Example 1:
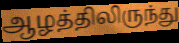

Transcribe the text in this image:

ஆழத்திலிருந்து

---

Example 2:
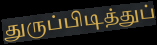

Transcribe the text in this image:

துருப்பிடித்துப்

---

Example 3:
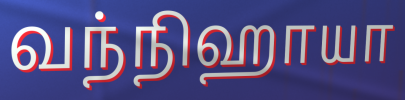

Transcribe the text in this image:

வந்நிஹாயா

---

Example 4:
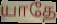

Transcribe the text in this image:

யாதே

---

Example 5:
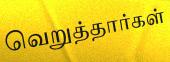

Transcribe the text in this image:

வெறுத்தார்கள்